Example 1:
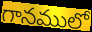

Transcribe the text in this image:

గానములో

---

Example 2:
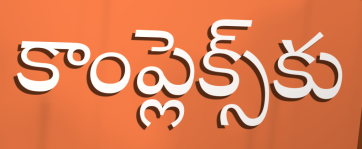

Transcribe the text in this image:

కాంప్లెక్స్‌కు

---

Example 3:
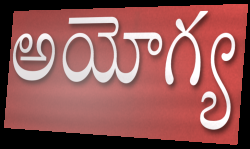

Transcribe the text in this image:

అయోగ్య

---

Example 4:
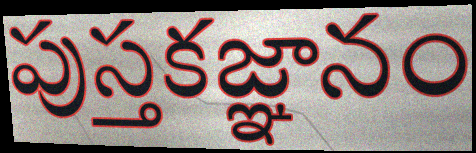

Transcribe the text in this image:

పుస్తకజ్ఞానం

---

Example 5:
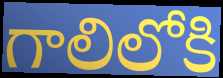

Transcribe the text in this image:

గాలిలోకి